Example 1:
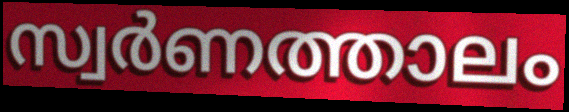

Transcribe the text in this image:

സ്വർണത്താലം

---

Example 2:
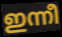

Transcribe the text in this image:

ഇന്നീ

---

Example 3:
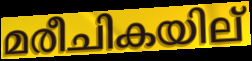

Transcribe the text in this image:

മരീചികയില്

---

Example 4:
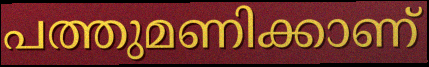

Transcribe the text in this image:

പത്തുമണിക്കാണ്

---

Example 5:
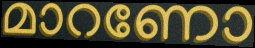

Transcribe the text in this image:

മാറണോ